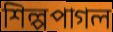
শিল্পপাগল